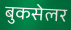
बुकसेलर